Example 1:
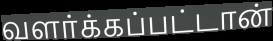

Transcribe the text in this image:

வளர்க்கப்பட்டான்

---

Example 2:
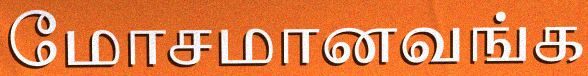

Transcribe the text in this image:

மோசமானவங்க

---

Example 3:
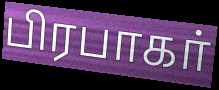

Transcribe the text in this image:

பிரபாகர்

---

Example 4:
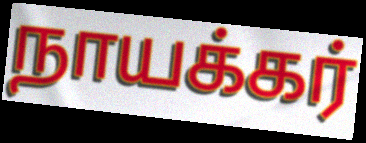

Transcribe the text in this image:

நாயக்கர்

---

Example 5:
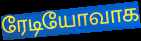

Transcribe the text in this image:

ரேடியோவாக